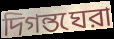
দিগন্তঘেরা